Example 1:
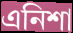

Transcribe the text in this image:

এনিশা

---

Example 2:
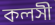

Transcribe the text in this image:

কলসী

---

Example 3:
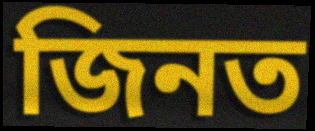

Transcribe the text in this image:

জিনত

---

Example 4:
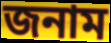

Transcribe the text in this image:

জনাম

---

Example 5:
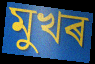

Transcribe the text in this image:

মুখৰ